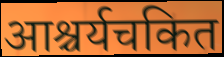
आश्चर्यचकित